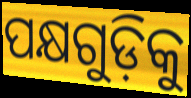
ପକ୍ଷଗୁଡ଼ିକୁ